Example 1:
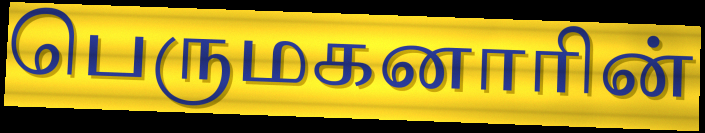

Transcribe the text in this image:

பெருமகனாரின்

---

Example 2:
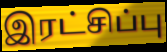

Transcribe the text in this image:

இரட்சிப்பு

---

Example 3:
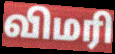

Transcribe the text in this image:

விமரி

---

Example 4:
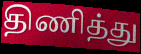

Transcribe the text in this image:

திணித்து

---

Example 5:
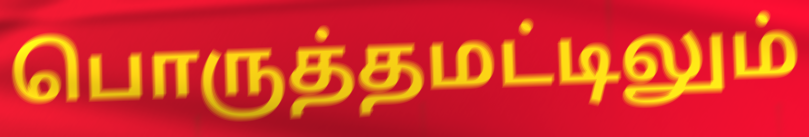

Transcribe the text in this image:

பொருத்தமட்டிலும்